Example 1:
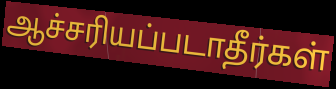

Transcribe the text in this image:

ஆச்சரியப்படாதீர்கள்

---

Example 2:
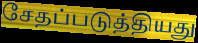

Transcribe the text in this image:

சேதப்படுத்தியது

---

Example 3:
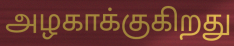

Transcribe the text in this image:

அழகாக்குகிறது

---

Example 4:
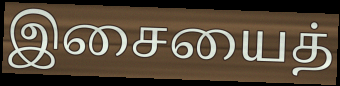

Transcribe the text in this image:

இசையைத்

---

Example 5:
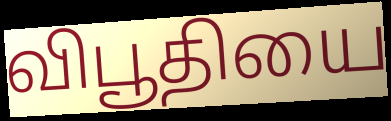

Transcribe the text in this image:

விபூதியை